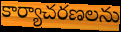
కార్యాచరణలను